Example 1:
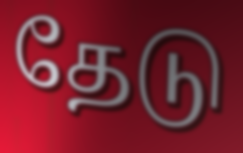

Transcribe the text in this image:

தேடு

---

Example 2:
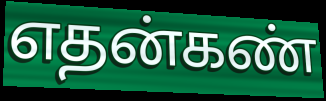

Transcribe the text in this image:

எதன்கண்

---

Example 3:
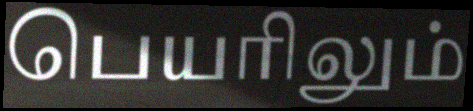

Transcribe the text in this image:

பெயரிலும்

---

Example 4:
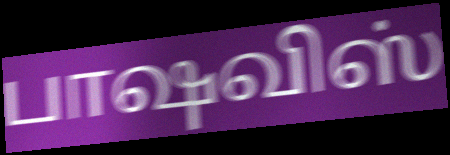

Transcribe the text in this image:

பாஷவிஸ்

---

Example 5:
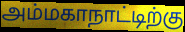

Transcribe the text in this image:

அம்மகாநாட்டிற்கு